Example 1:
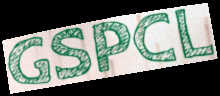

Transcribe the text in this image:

GSPCL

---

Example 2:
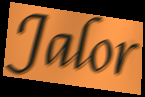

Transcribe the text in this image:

Jalor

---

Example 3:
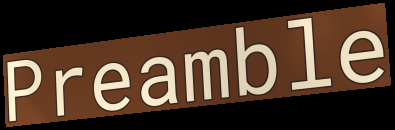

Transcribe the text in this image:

Preamble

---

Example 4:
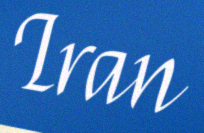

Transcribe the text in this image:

Iran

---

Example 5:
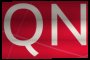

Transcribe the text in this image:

QN